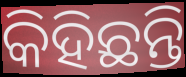
କିହିଛନ୍ତି